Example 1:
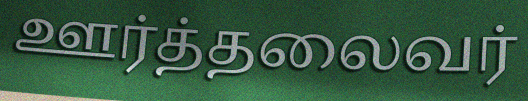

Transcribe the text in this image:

ஊர்த்தலைவர்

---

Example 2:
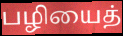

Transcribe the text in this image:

பழியைத்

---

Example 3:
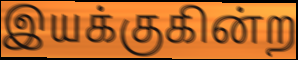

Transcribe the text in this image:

இயக்குகின்ற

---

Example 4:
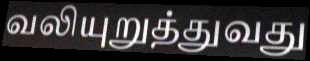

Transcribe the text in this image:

வலியுறுத்துவது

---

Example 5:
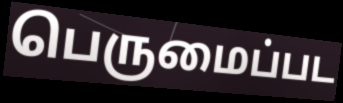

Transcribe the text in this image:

பெருமைப்பட